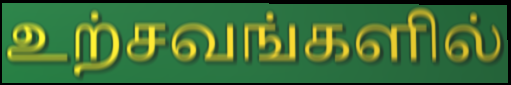
உற்சவங்களில்